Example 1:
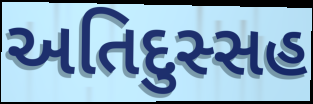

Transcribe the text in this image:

અતિદુસ્સહ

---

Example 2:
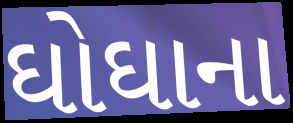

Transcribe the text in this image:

ઘોઘાના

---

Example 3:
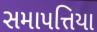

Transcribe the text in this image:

સમાપત્તિયા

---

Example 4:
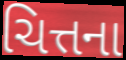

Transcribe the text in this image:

ચિત્તના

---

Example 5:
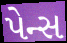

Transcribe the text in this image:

પેન્સ